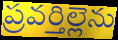
ప్రవర్తిల్లెను